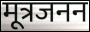
मूत्रजनन